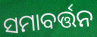
ସମାବର୍ତ୍ତନ